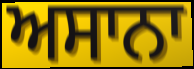
ਅਸਾਨਾ